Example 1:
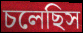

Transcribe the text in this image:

চলেছিস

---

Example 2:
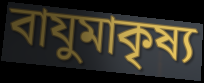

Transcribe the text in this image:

বাযুমাকৃষ্য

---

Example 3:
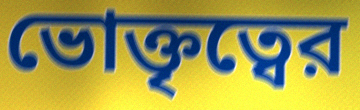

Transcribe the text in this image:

ভোক্তৃত্বের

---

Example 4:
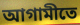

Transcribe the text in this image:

আগামীতে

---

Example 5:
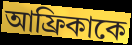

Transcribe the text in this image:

আফ্রিকাকে